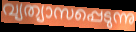
വ്യത്യാസപ്പെടുന്നു